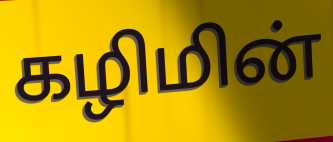
கழிமின்